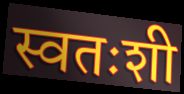
स्वतःशी